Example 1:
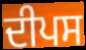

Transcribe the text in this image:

ਦੀਪਸ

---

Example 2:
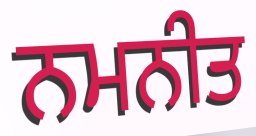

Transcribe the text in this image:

ਨਮਨੀਤ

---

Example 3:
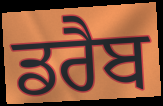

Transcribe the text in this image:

ਡਰੈਬ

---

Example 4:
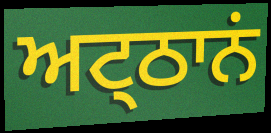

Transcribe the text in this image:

ਅਟ੍ਠਾਨਂ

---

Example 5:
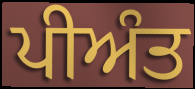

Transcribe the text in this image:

ਪੀਅੰਤ